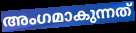
അംഗമാകുന്നത്